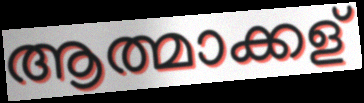
ആത്മാക്കള്